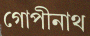
গোপীনাথ